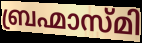
ബ്രഹ്മാസ്മി